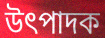
উৎপাদক